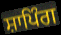
ਸ਼ਾਪਿੰਗ